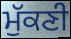
ਮੁੱਕਣੀ